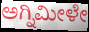
ಅಗ್ನಿಮೀಳೇ